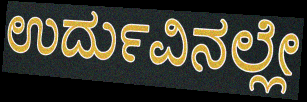
ಉರ್ದುವಿನಲ್ಲೇ